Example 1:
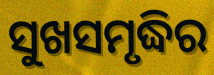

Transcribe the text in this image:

ସୁଖସମୃଦ୍ଧିର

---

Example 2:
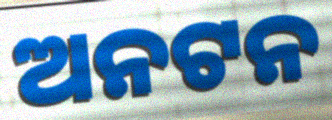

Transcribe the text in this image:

ଅନଟନ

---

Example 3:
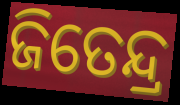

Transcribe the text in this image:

ଜିତେନ୍ଦ୍ର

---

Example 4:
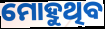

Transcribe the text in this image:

ମୋହୁଥିବ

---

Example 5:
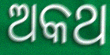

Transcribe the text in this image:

ଅକଥ